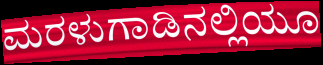
ಮರಳುಗಾಡಿನಲ್ಲಿಯೂ